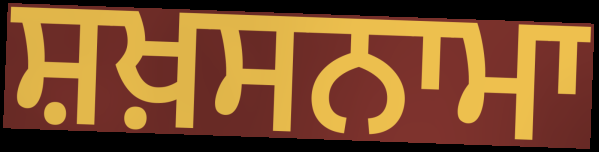
ਸ਼ਖ਼ਸਨਾਮਾ